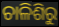
ଚାଳିଶିରୁ